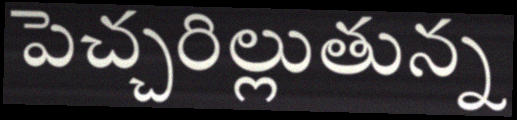
పెచ్చరిల్లుతున్న